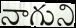
నాగుని